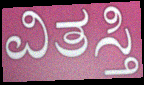
ವಿತಸ್ತಿ